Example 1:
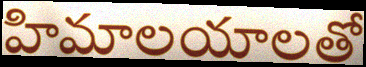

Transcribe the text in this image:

హిమాలయాలతో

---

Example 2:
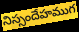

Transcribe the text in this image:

నిస్సందేహముగ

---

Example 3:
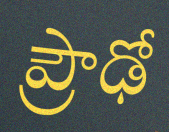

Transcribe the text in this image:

ప్రౌఢో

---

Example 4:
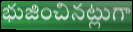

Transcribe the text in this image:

భుజించినట్లుగా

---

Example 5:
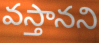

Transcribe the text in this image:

వస్తానని